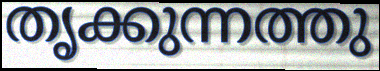
തൃക്കുന്നത്തു